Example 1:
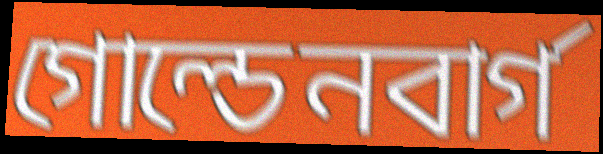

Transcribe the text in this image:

গোল্ডেনবার্গ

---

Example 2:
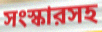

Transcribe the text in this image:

সংস্কারসহ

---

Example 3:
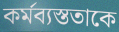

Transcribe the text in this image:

কর্মব্যস্ততাকে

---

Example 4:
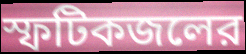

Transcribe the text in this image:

স্ফটিকজলের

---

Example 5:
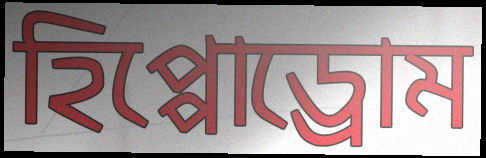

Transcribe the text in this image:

হিপ্পোড্রোম